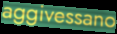
aggivessano